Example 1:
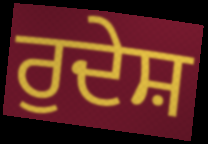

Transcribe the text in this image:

ਰੁਦੇਸ਼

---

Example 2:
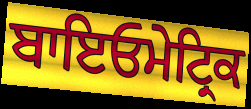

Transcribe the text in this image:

ਬਾਇਓਮੇਟ੍ਰਿਕ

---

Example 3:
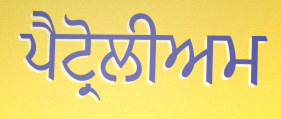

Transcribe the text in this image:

ਪੈਟ੍ਰੋਲੀਅਮ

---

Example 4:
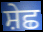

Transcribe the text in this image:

ਸ਼ੇਛ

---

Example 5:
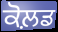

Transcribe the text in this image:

ਕੋਲ਼ਡ